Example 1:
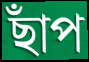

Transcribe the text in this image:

ছাঁপ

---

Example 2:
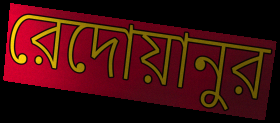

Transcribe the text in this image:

রেদোয়ানুর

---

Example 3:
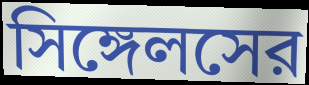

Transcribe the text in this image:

সিঙ্গেলসের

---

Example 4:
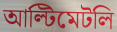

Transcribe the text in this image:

আল্টিমেটলি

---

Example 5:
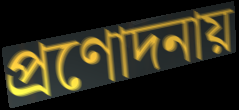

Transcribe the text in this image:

প্রণোদনায়